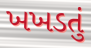
ખખડતું